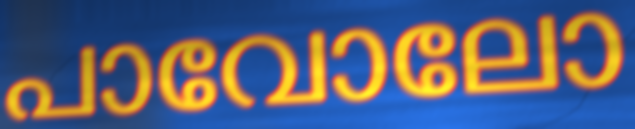
പാവോലോ